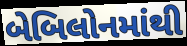
બેબિલોનમાંથી